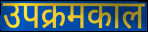
उपक्रमकाल